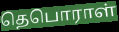
தெபொராள்